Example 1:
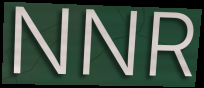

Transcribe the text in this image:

NNR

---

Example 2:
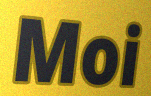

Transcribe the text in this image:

Moi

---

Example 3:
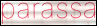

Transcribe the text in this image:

parassa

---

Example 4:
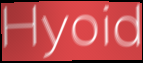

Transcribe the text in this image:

Hyoid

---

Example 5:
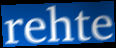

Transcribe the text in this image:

rehte